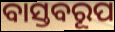
ବାସ୍ତବରୂପ